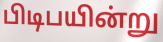
பிடிபயின்று